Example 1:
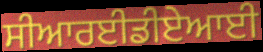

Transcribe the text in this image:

ਸੀਆਰਈਡੀਏਆਈ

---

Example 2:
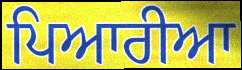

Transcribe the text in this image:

ਪਿਆਰੀਆ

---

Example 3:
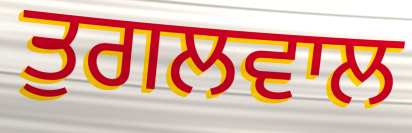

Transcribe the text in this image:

ਤੁਗਲਵਾਲ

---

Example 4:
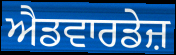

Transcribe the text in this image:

ਐਡਵਾਰਡੇਜ਼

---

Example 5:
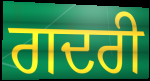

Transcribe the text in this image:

ਗਦਰੀ